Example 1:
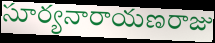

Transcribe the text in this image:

సూర్యనారాయణరాజు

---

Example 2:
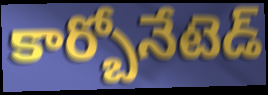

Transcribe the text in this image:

కార్బోనేటెడ్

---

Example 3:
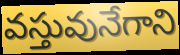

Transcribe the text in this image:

వస్తువునేగాని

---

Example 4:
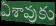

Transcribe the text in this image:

ఏశావుకు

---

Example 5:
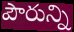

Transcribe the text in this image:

పౌరున్ని